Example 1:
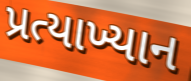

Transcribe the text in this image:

પ્રત્યાખ્યાન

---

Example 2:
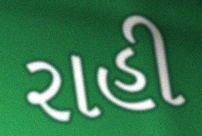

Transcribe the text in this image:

રાહી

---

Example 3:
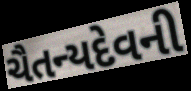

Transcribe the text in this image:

ચૈતન્યદેવની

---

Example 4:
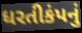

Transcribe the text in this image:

ધરતીકંપનું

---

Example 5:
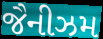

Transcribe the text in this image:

જૈનીઝમ